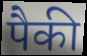
पैकी